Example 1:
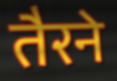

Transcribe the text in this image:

तैरने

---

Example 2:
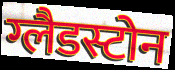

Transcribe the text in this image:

ग्लैडस्टोन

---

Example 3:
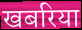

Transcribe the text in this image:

खबरिया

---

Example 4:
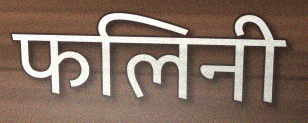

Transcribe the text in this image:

फलिनी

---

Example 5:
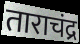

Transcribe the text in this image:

ताराचंद्र